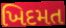
ખિદમત